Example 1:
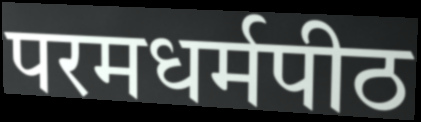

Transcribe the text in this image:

परमधर्मपीठ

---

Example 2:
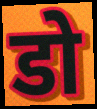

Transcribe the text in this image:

डो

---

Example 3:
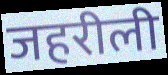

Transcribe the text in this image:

जहरीली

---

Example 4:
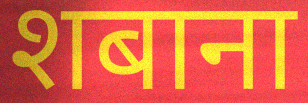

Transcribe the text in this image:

शबाना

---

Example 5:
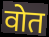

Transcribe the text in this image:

वोत